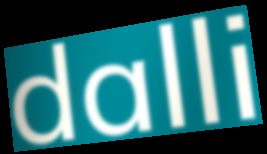
dalli